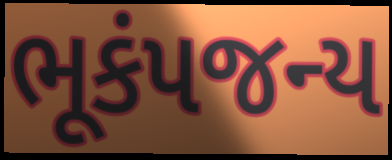
ભૂકંપજન્ય